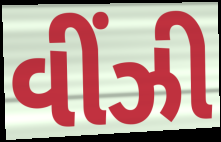
વીંઝી